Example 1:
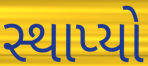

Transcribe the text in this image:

સ્થાપ્યો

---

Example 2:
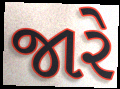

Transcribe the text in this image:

જારે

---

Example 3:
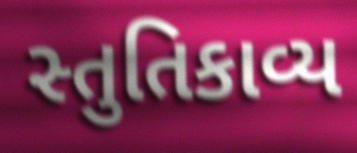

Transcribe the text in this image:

સ્તુતિકાવ્ય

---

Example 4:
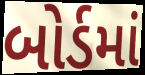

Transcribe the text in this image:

બોર્ડમાં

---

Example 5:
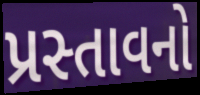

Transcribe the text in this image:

પ્રસ્તાવનો